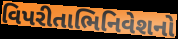
વિપરીતાભિનિવેશનો